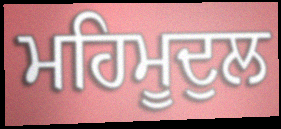
ਮਹਿਮੂਦੁਲ